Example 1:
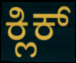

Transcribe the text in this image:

ಕ್ಲಿಕ್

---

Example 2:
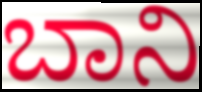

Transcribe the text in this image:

ಬಾನಿ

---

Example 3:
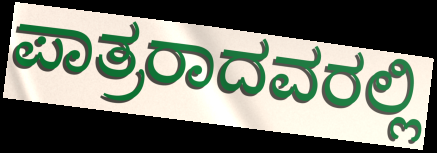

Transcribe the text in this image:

ಪಾತ್ರರಾದವರಲ್ಲಿ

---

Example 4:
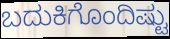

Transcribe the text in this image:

ಬದುಕಿಗೊಂದಿಷ್ಟು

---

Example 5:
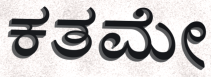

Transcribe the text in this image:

ಕತಮೇ